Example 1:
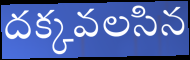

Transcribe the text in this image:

దక్కవలసిన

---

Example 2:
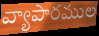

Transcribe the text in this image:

వ్యాపారముల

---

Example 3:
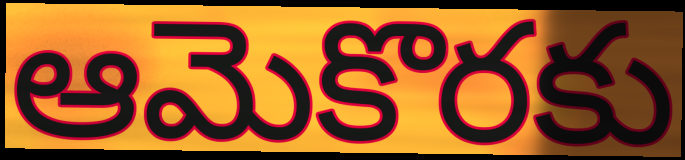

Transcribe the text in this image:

ఆమెకొరకు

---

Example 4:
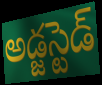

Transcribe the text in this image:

అడ్జస్టెడ్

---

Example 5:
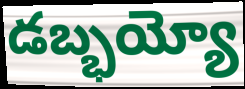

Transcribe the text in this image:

డబ్భయ్యో